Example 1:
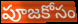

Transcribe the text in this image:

పూజకోసం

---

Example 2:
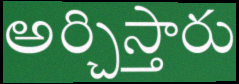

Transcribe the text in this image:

అర్చిస్తారు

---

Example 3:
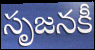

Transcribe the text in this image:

సృజనకీ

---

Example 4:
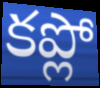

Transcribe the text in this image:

కప్లో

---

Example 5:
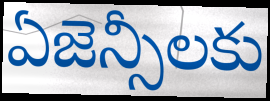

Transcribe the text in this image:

ఏజెన్సీలకు